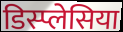
डिस्प्लेसिया